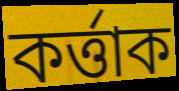
কৰ্ত্তাক